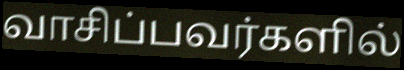
வாசிப்பவர்களில்